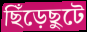
ছিঁড়েছুটে